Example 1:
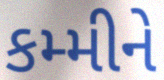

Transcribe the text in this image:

કમ્મીને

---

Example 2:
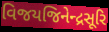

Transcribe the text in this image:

વિજયજિનેન્દ્રસૂરિ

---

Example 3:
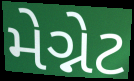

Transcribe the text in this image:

મેગ્નેટ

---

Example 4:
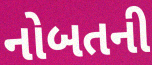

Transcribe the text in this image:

નોબતની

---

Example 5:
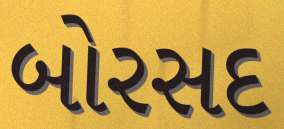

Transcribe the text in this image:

બોરસદ